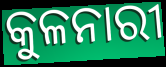
କୁଳନାରୀ